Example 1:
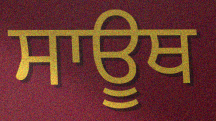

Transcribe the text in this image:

ਸਾਊਥ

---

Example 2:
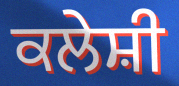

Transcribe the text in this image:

ਕਲੇਸ਼ੀ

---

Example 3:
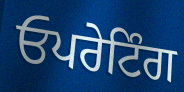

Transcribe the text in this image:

ਓਪਰੇਟਿੰਗ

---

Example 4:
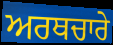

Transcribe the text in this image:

ਅਰਥਚਾਰੇ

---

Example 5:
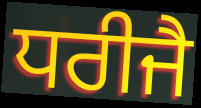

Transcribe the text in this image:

ਧਰੀਜੈ